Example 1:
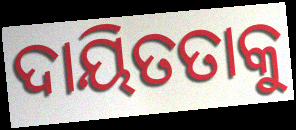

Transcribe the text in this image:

ଦାୟିତତାକୁ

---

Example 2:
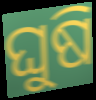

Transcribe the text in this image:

ଘୁଷି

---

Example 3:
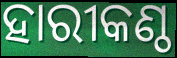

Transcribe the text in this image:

ହାରୀକଣ୍ଠ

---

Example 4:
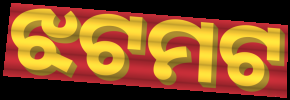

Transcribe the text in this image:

ଝଟମଟ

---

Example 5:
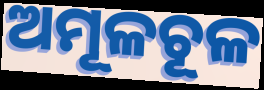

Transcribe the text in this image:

ଅମୂଳଚୂଳ